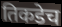
तिकडेच